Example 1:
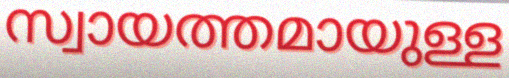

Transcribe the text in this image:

സ്വായത്തമായുള്ള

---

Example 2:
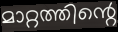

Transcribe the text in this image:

മാറ്റത്തിന്റെ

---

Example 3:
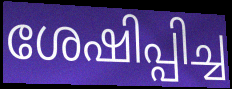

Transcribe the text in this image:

ശേഷിപ്പിച്ച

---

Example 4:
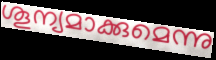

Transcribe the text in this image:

ശൂന്യമാക്കുമെന്നു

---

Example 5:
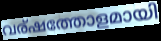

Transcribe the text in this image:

വര്ഷത്തോളമായി